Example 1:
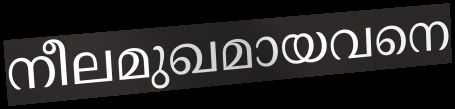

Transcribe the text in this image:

നീലമുഖമായവനെ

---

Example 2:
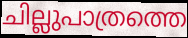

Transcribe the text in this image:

ചില്ലുപാത്രത്തെ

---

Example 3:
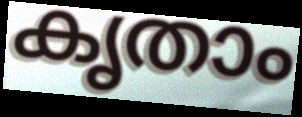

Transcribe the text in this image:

കൃതാം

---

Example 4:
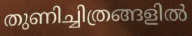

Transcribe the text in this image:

തുണിച്ചിത്രങ്ങളിൽ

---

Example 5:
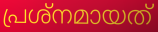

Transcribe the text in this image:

പ്രശ്നമായത്